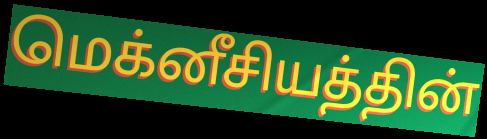
மெக்னீசியத்தின்